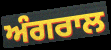
ਅੰਗਰਾਲ